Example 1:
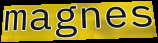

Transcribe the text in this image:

magnes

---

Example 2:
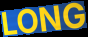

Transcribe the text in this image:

LONG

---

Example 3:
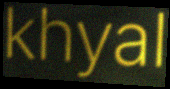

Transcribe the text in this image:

khyal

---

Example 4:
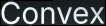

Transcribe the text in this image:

Convex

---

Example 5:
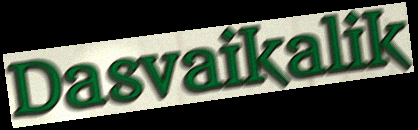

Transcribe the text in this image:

Dasvaikalik